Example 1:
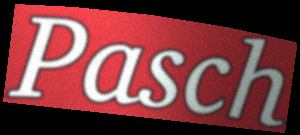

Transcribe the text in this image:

Pasch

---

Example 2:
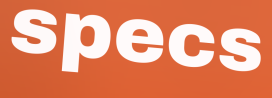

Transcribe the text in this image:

specs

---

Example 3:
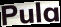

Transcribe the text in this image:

Pula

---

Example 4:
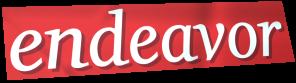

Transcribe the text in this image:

endeavor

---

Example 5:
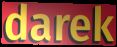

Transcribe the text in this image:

darek